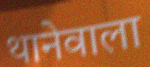
थानेवाला